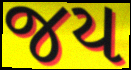
જય